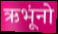
ऋभूंनो